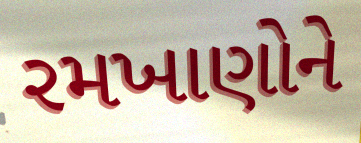
રમખાણોને